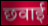
छवाई